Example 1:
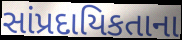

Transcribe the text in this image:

સાંપ્રદાયિકતાના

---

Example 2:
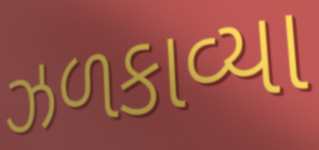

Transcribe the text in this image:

ઝળકાવ્યા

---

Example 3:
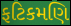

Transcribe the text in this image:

ફટિકમણિ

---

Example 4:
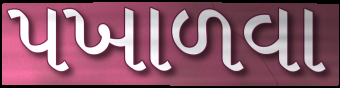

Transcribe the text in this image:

પખાળવા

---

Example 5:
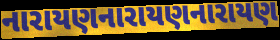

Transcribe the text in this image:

નારાયણનારાયણનારાયણ